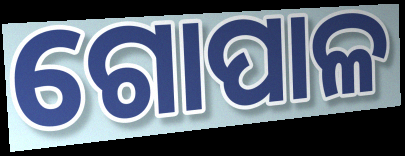
ଗୋପାଳ